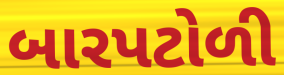
બારપટોળી